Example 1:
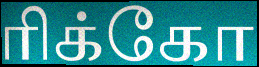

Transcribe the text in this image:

ரிக்கோ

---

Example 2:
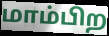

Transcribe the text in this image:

மாம்பிற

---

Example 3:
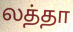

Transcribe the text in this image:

லத்தா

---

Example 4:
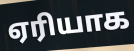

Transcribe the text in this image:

ஏரியாக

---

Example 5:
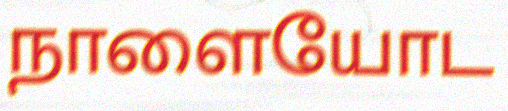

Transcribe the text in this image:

நாளையோட